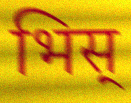
भिस्